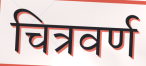
चित्रवर्ण